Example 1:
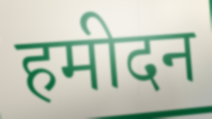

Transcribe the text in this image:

हमीदन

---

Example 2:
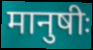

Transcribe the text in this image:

मानुषीः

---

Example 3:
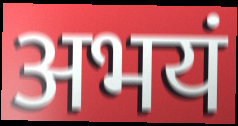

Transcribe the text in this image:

अभयं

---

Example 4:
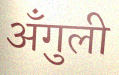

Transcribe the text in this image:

अँगुली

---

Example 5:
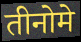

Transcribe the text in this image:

तीनोमे